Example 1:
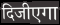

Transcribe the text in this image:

दिजीएगा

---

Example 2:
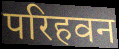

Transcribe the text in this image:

परिहवन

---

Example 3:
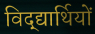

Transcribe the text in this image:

विद्द्यार्थियों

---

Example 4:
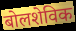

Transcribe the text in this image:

बोलशेविक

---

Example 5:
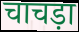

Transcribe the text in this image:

चाचड़ा